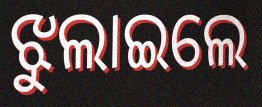
ଝୁଲାଇଲେ